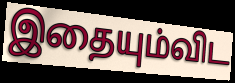
இதையும்விட